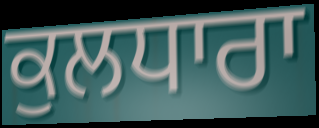
ਕੁਲਧਾਰਾ